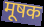
मूषक